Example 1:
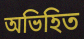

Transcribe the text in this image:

অভিহিত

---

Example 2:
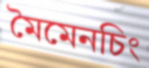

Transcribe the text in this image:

মৈমেনচিং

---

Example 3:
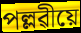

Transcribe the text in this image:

পল্লৱীয়ে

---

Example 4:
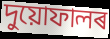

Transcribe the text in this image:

দুয়োফালৰ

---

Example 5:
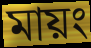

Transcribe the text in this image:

মায়ং